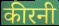
कीरनी